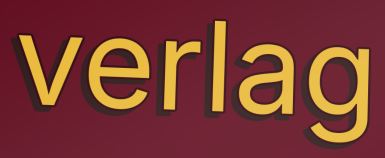
verlag